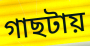
গাছটায়